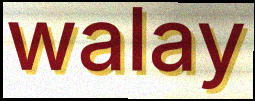
walay